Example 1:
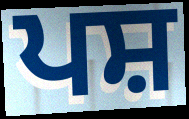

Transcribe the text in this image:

ਪਸ਼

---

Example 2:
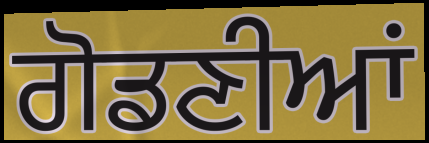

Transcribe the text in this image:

ਗੋਡਣੀਆਂ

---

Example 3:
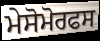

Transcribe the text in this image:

ਮੇਸੋਮੋਰਫਸ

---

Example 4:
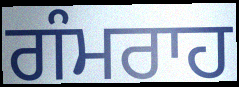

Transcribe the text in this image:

ਗੰਮਰਾਹ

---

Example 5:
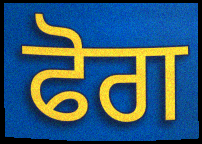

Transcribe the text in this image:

ਫੋਗ